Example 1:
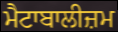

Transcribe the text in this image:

ਮੈਟਾਬਾਲੀਜ਼ਮ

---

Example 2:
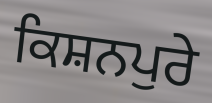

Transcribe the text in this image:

ਕਿਸ਼ਨਪੁਰੇ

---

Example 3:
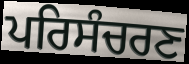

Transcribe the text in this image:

ਪਰਿਸੰਚਰਣ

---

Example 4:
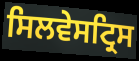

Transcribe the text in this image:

ਸਿਲਵੇਸਟ੍ਰਿਸ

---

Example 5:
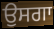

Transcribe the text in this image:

ਉਸਗਾ